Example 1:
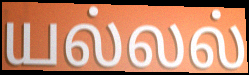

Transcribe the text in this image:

யல்லல்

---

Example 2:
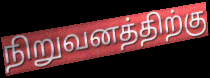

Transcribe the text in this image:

நிறுவனத்திற்கு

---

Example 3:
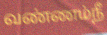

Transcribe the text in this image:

வண்ணம்நீ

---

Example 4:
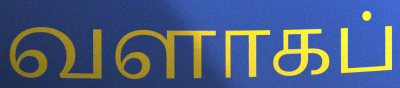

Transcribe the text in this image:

வளாகப்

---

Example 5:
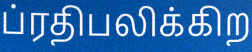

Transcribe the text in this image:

ப்ரதிபலிக்கிற